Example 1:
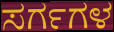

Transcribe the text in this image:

ಸರ್ಗಗಳ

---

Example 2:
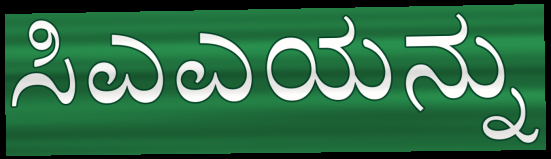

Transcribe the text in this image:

ಸಿಎಎಯನ್ನು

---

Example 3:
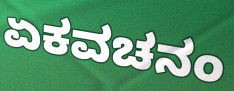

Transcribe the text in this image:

ಏಕವಚನಂ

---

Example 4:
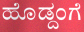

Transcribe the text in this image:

ಹೊಡ್ದಂಗೆ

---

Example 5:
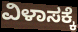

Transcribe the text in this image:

ವಿಳಾಸಕ್ಕೆ